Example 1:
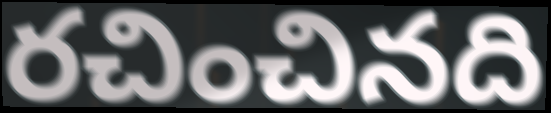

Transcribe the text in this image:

రచించినది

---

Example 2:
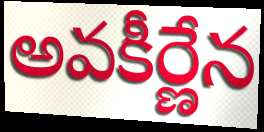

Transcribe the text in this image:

అవకీర్ణేన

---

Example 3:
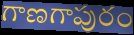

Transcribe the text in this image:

గాణగాపురం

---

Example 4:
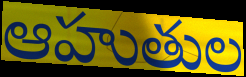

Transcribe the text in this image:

ఆహుతుల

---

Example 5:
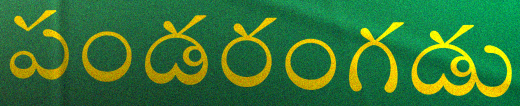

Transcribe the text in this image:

పండరంగడు